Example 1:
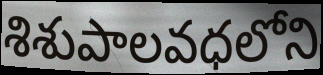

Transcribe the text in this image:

శిశుపాలవధలోని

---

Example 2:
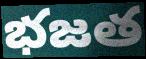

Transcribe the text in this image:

భజత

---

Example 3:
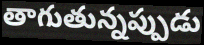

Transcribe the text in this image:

తాగుతున్నప్పుడు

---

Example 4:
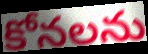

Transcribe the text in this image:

కోనలను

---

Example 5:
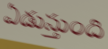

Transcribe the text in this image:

ఏడుస్తుంది